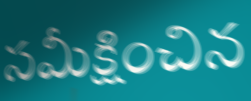
సమీక్షించిన